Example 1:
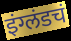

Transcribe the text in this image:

इंग्लंडचं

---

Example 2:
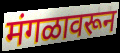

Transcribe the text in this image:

मंगळावरून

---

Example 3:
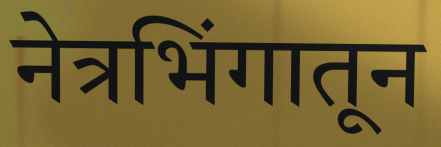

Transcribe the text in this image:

नेत्रभिंगातून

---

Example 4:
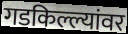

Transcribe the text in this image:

गडकिल्ल्यांवर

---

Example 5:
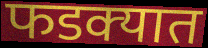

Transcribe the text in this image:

फडक्‍यात